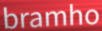
bramho